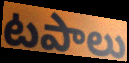
టపాలు